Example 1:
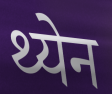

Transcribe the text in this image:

थ्येन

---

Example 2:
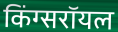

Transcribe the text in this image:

किंग्सरॉयल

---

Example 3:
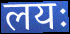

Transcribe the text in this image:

लयः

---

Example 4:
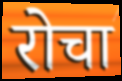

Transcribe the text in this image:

रोचा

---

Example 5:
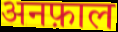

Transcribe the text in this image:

अनफ़ाल